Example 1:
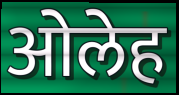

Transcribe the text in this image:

ओलेह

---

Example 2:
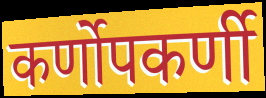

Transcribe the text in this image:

कर्णोपकर्णी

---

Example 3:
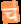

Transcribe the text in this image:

च॑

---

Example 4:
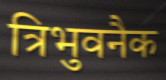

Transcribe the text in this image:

त्रिभुवनैक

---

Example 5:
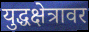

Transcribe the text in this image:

युद्धक्षेत्रावर